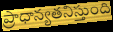
ప్రాధాన్యతనిస్తుంది